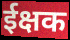
ईक्षक